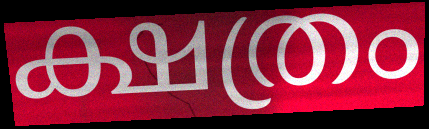
ക്ഷത്രം